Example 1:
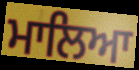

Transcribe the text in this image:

ਮਾਲਿਆ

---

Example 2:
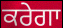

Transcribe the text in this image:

ਕਰੇਗਾ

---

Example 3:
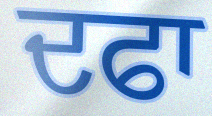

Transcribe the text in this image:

ਦਫਾ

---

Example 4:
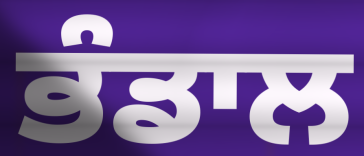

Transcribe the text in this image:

ਭੰਡਾਲ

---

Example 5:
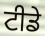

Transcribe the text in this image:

ਟੀਡੇ